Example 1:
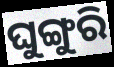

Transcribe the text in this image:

ଘୁଙ୍ଗୁରି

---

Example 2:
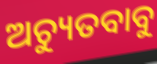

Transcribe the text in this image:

ଅଚ୍ୟୁତବାବୁ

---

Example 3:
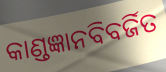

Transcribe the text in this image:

କାଣ୍ଡଜ୍ଞାନବିବର୍ଜିତ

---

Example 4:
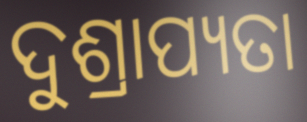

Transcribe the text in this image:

ଦୁଶ୍ରାପ୍ୟତା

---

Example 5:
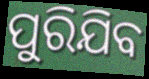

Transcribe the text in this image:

ପୁରିଯିବ